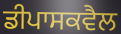
ਡੀਪਾਸਕਵੈਲ